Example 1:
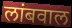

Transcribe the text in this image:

लांबवाल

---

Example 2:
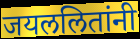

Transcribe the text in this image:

जयललितांनी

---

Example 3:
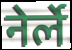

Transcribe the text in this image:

नेर्ले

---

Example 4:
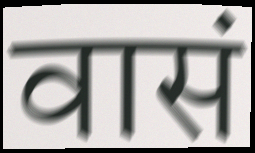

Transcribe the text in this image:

वासं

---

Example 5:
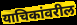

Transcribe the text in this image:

याचिकांवरील